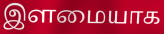
இளமையாக